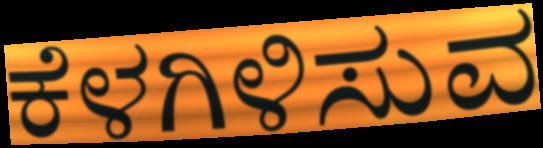
ಕೆಳಗಿಳಿಸುವ